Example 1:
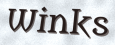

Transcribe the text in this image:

Winks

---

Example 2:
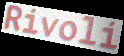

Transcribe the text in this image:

Rivoli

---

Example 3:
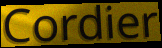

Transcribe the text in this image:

Cordier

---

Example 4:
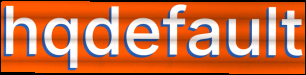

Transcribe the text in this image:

hqdefault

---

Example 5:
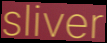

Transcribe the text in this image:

sliver